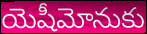
యెషీమోనుకు